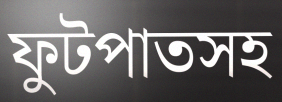
ফুটপাতসহ